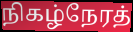
நிகழ்நேரத்